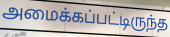
அமைக்கப்பட்டிருந்த